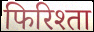
फिरिश्ता